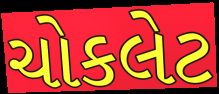
ચોકલેટ